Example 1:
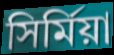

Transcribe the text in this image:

সির্মিয়া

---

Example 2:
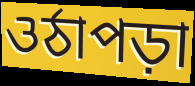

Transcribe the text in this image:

ওঠাপড়া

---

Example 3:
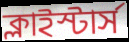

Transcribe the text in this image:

ক্লাইস্টার্স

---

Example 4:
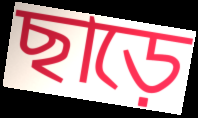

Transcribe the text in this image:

ছাড়ে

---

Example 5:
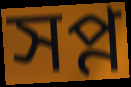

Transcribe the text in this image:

সপ্ন